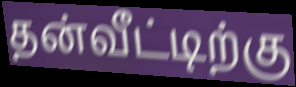
தன்வீட்டிற்கு